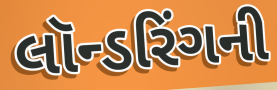
લૉન્ડરિંગની